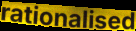
rationalised